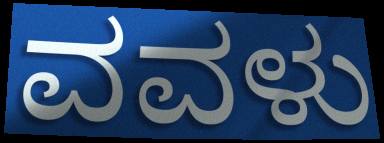
ವವಳು